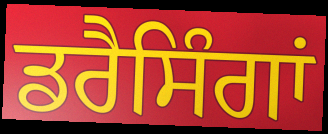
ਡਰੈਸਿੰਗਾਂ